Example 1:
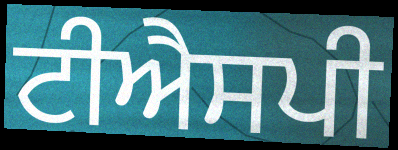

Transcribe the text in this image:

ਟੀਐਸਪੀ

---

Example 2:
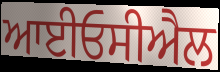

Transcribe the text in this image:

ਆਈਓਸੀਐਲ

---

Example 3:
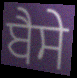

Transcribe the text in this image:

ਬੈਸੇ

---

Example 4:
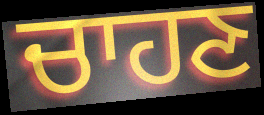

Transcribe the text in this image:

ਚਾਹਣ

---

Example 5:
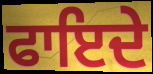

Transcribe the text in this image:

ਫਾਇਦੇ